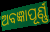
ଅବଜ୍ଞାପୂର୍ଣ୍ଣ